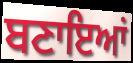
ਬਣਾਇਆਂ